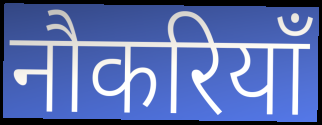
नौकरियाँ